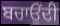
ਬਚਾਉਂਦੀ